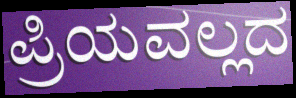
ಪ್ರಿಯವಲ್ಲದ